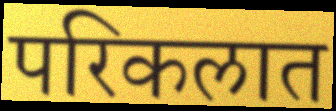
परिकलात